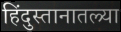
हिंदुस्तानातल्या